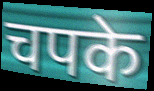
चपके